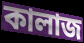
কালাজ